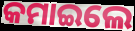
କମାଇଲେ